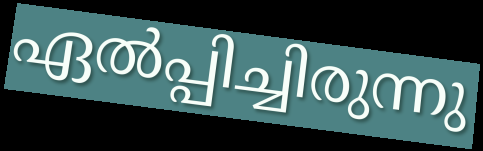
ഏൽപ്പിച്ചിരുന്നു